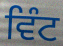
ਵਿੰਟ